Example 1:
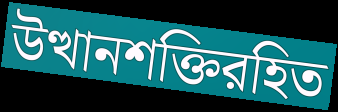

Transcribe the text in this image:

উত্থানশক্তিরহিত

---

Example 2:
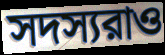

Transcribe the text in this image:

সদস্যরাও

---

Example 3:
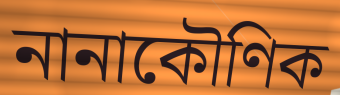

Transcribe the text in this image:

নানাকৌণিক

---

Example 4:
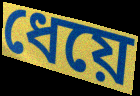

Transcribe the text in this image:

ধেয়ে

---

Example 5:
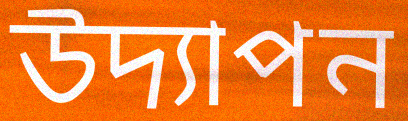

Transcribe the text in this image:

উদ্যাপন